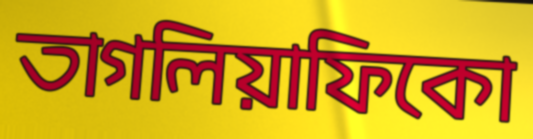
তাগলিয়াফিকো